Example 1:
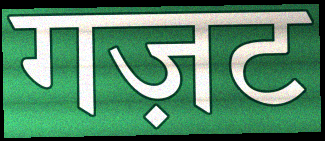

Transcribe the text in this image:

गज़ट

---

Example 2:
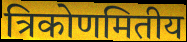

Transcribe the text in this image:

त्रिकोणमितीय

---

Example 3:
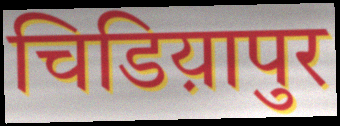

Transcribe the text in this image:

चिडिय़ापुर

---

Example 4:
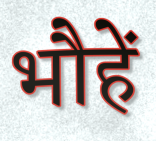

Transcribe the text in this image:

भौहें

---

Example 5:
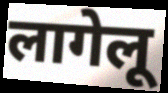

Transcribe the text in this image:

लागेलू